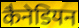
कैनेडियन